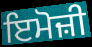
ਇਮੋਜ਼ੀ